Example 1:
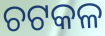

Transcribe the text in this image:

ଚଟକଳ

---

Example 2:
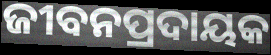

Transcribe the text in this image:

ଜୀବନପ୍ରଦାୟକ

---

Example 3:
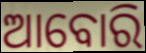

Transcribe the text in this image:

ଆବୋରି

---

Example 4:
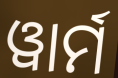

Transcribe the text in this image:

ୱାର୍ମ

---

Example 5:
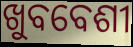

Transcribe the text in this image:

ଖୁବବେଶୀ